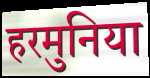
हरमुनिया